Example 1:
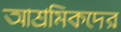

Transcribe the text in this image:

আশ্রমিকদের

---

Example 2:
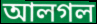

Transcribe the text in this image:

আলগল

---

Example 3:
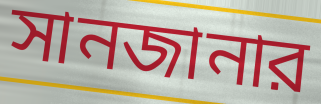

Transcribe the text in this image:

সানজানার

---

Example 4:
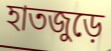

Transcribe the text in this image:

হাতজুড়ে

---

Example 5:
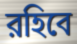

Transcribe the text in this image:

রহিবে